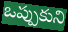
ఒప్పుకుని